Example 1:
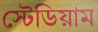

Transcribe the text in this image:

স্টেডিয়াম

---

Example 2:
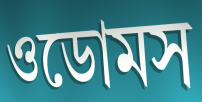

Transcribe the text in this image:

ওডোমস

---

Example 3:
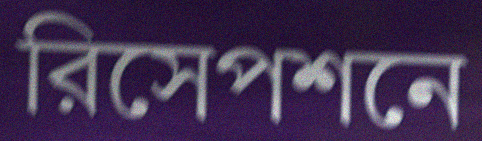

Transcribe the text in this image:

রিসেপশনে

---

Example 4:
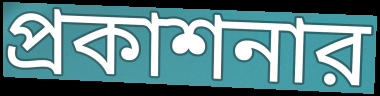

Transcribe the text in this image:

প্রকাশনার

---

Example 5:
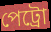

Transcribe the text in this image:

পেট্রো